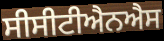
ਸੀਸੀਟੀਐਨਐਸ